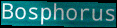
Bosphorus